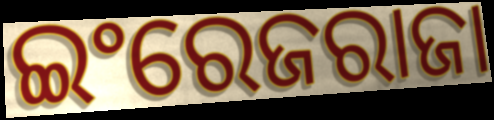
ଇଂରେଜରାଜା